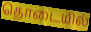
தொடையில்